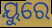
ୟୁରେ